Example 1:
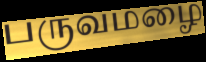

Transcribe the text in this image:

பருவமழை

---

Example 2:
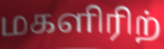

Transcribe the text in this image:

மகளிரிற்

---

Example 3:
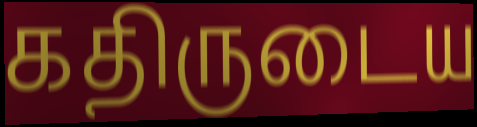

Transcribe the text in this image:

கதிருடைய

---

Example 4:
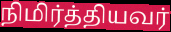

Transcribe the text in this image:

நிமிர்த்தியவர்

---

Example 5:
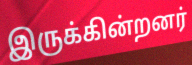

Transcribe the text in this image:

இருக்கின்றனர்